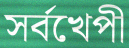
সর্বখেপী